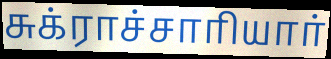
சுக்ராச்சாரியார்